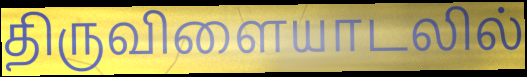
திருவிளையாடலில்